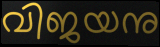
വിജയനു